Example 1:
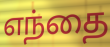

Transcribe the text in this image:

எந்தை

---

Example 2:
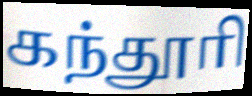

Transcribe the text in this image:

கந்தூரி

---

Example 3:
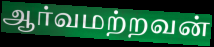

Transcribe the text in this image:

ஆர்வமற்றவன்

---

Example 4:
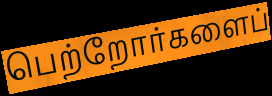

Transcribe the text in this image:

பெற்றோர்களைப்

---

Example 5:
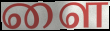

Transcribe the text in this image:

ளை